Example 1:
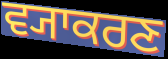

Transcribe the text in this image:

ਵ੍ਯਾਕਰਣ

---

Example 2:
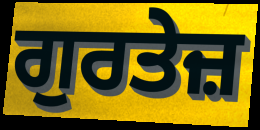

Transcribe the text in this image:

ਗੁਰਤੇਜ਼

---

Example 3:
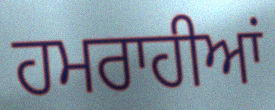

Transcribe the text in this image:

ਹਮਰਾਹੀਆਂ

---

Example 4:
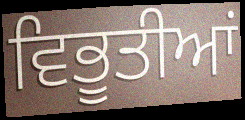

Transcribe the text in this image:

ਵਿਭੂਤੀਆਂ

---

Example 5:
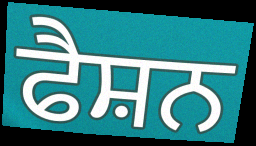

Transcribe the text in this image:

ਫੈਸ਼ਨ